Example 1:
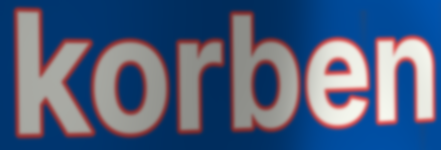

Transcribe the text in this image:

korben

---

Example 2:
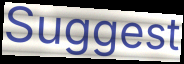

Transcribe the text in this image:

Suggest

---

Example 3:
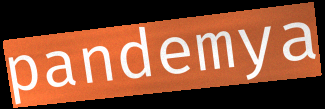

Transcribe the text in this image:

pandemya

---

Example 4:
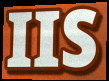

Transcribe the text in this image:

IIS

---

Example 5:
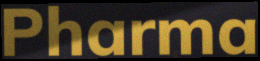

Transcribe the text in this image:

Pharma